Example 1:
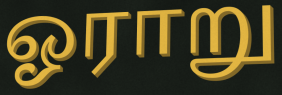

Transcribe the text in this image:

ஓராறு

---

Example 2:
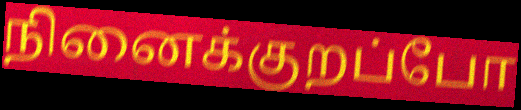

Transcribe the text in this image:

நினைக்குறப்போ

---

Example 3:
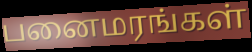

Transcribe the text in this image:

பனைமரங்கள்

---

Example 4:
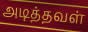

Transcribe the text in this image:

அடித்தவள்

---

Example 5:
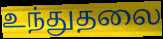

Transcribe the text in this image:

உந்துதலை